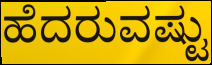
ಹೆದರುವಷ್ಟು